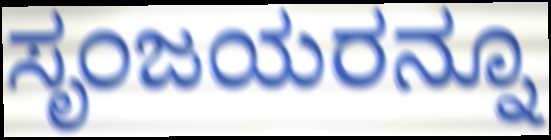
ಸೃಂಜಯರನ್ನೂ